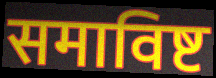
समाविष्ट